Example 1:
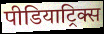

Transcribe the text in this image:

पीडियाट्रिक्स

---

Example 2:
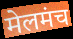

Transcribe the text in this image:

मेलमंच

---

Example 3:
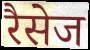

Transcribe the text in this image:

रैसेज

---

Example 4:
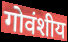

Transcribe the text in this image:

गोवंशीय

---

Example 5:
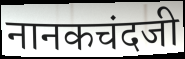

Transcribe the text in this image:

नानकचंदजी